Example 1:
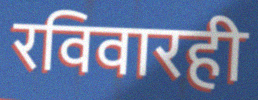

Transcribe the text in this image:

रविवारही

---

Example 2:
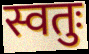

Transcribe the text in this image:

स्वतुः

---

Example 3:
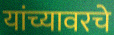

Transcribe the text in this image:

यांच्यावरचे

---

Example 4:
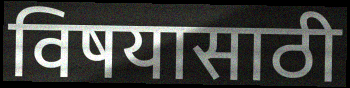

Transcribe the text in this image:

विषयासाठी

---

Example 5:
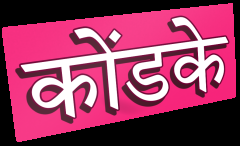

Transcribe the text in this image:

कोंडके